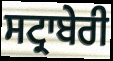
ਸਟ੍ਰਾਬੇਰੀ